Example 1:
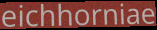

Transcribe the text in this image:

eichhorniae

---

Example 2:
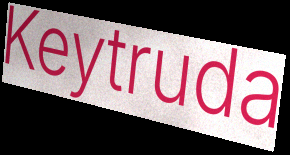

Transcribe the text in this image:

Keytruda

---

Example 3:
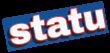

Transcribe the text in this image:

statu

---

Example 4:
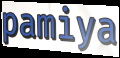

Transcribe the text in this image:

pamiya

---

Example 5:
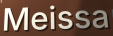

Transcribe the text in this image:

Meissa